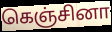
கெஞ்சினா